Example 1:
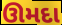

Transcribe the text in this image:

ઊમદા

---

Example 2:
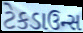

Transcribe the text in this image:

ટેકડાઉન્સ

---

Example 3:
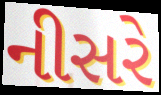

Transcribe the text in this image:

નીસરે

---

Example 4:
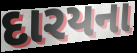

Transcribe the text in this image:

દારયના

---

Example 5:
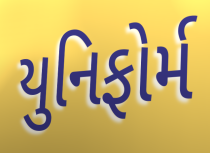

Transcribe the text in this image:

યુનિફોર્મ